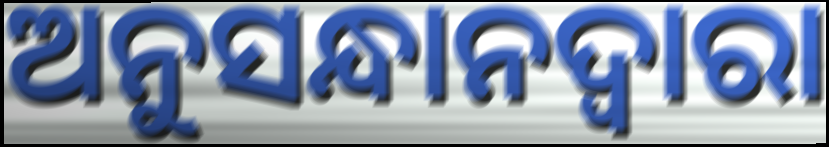
ଅନୁସନ୍ଧାନଦ୍ୱାରା